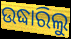
ଉଦ୍ଧାରିଲୁ